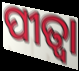
ପୀତ୍ବା